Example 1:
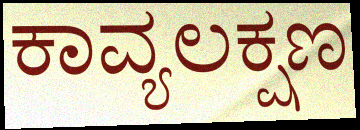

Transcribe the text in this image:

ಕಾವ್ಯಲಕ್ಷಣ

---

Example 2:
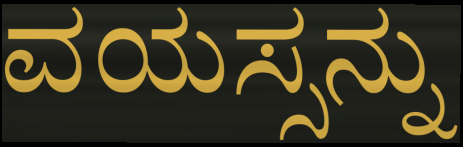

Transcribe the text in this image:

ವಯಸ್ಸನ್ನು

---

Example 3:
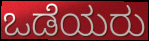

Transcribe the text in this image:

ಒಡೆಯರು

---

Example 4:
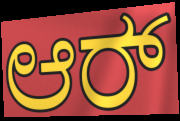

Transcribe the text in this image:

ಆರ್‍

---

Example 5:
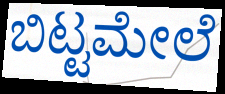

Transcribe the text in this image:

ಬಿಟ್ಟಮೇಲೆ